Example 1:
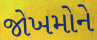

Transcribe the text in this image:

જોખમોને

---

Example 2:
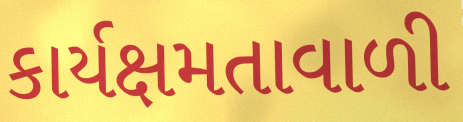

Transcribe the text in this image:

કાર્યક્ષમતાવાળી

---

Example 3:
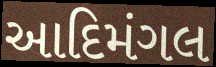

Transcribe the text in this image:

આદિમંગલ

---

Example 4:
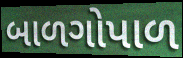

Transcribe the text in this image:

બાળગોપાળ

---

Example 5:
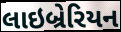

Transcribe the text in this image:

લાઇબ્રેરિયન